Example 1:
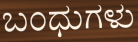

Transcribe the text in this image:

ಬಂಧುಗಳು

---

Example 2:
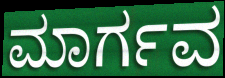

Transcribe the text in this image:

ಮಾರ್ಗವ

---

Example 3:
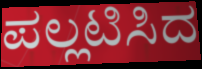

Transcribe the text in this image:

ಪಲ್ಲಟಿಸಿದ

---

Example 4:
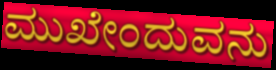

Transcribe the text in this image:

ಮುಖೇಂದುವನು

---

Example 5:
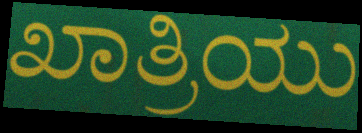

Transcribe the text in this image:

ಖಾತ್ರಿಯು